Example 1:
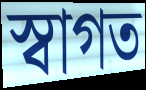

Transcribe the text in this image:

স্বাগত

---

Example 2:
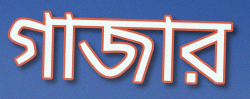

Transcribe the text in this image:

গাজার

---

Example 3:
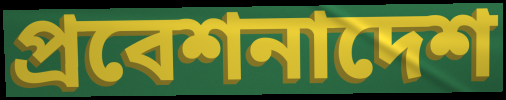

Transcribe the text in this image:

প্রবেশনাদেশ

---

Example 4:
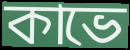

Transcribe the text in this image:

কাভে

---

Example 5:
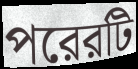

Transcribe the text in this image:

পরেরটি